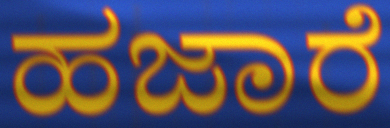
ಹಜಾರೆ